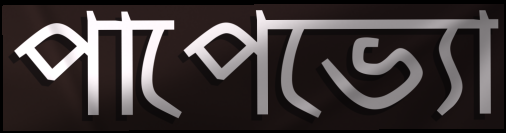
পাপেভ্যো